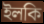
ইলকি